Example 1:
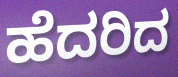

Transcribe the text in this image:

ಹೆದರಿದ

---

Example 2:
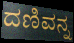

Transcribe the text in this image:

ದಣಿವನ್ನ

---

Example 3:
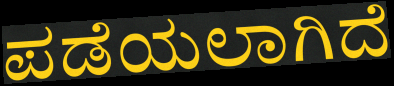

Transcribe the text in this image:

ಪಡೆಯಲಾಗಿದೆ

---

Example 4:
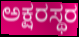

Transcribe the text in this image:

ಅಕ್ಷರಸ್ಥರ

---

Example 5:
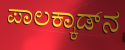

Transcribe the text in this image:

ಪಾಲಕ್ಕಾಡ್‌ನ